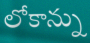
లోకాన్ను